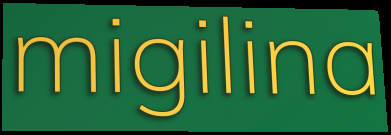
migilina